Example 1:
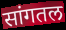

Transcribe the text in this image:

सांगतल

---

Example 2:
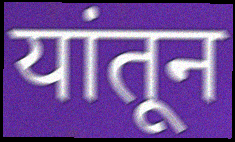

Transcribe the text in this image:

यांतून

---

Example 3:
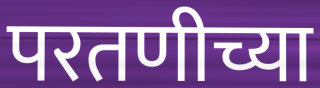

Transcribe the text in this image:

परतणीच्या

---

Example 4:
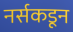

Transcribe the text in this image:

नर्सकडून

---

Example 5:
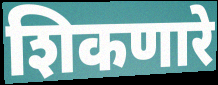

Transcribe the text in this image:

शिकणारे